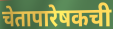
चेतापारेषकची